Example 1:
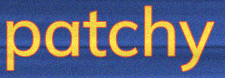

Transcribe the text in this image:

patchy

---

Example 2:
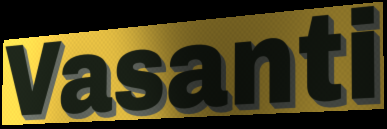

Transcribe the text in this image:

Vasanti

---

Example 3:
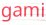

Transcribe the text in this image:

gami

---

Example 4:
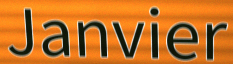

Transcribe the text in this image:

Janvier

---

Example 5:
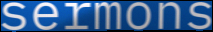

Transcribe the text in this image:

sermons